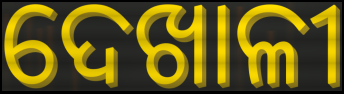
ଦେଖାଳୀ